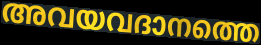
അവയവദാനത്തെ